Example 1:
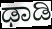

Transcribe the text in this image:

ಢಾಡಿ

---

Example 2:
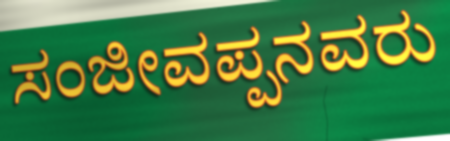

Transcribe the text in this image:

ಸಂಜೀವಪ್ಪನವರು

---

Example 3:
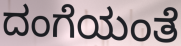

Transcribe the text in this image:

ದಂಗೆಯಂತೆ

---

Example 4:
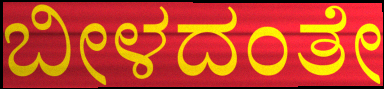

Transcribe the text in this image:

ಬೀಳದಂತೇ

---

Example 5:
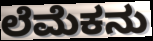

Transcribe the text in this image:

ಲೆಮೆಕನು